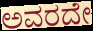
ಅವರದೇ